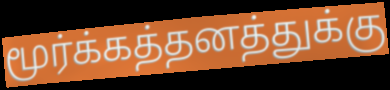
மூர்க்கத்தனத்துக்கு